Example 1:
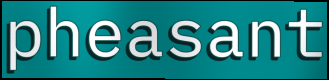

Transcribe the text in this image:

pheasant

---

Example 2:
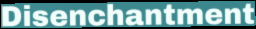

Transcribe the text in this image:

Disenchantment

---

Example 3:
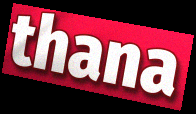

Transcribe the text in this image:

thana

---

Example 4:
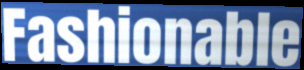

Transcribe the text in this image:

Fashionable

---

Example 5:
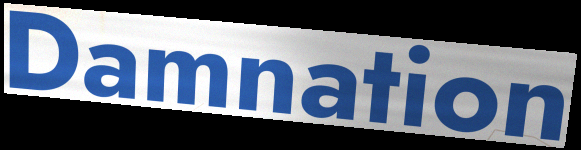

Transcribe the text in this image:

Damnation